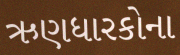
ઋણધારકોના